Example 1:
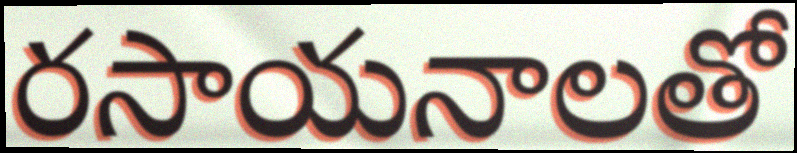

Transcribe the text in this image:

రసాయనాలతో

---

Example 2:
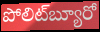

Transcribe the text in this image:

పోలిట్‌బ్యూరో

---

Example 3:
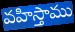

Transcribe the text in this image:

వహిస్తాము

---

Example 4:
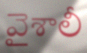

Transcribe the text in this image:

వైశాలీ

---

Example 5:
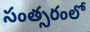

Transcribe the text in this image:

సంత్సరంలో